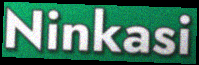
Ninkasi